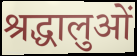
श्रद्धालुओं